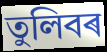
তুলিবৰ